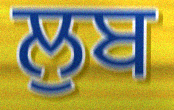
ਲੁਬ